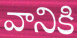
వానికి